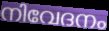
നിവേദനം